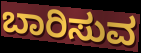
ಬಾರಿಸುವ